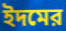
ইদমের